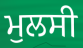
ਮੁਲਸੀ